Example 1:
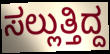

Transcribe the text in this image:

ಸಲ್ಲುತ್ತಿದ್ದ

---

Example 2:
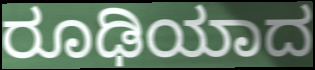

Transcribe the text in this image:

ರೂಢಿಯಾದ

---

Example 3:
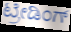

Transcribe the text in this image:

ಟ್ರೇಡಿಂಗ್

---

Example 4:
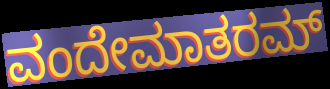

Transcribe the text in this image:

ವಂದೇಮಾತರಮ್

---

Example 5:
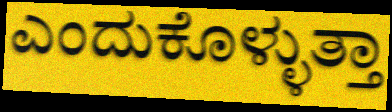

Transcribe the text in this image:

ಎಂದುಕೊಳ್ಳುತ್ತಾ